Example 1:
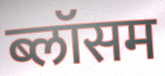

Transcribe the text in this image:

ब्लॉसम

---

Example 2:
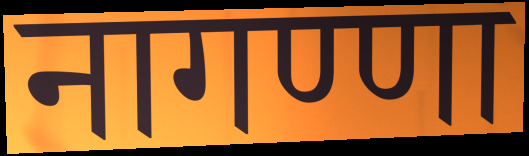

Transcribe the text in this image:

नागण्णा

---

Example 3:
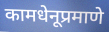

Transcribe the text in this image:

कामधेनूप्रमाणे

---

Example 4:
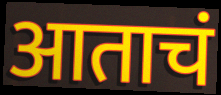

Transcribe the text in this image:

आताचं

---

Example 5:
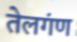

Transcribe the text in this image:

तेलगंण